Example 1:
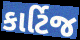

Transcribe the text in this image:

કાર્ટિજ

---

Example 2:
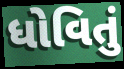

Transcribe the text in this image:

ધોવિતું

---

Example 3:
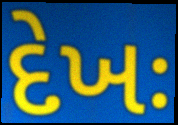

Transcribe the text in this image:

દેખઃ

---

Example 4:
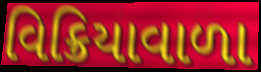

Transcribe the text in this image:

વિક્રિયાવાળા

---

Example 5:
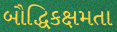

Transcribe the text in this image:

બૌદ્ધિકક્ષમતા